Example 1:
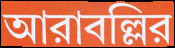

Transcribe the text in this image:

আরাবল্লির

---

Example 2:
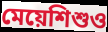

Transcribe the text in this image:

মেয়েশিশুও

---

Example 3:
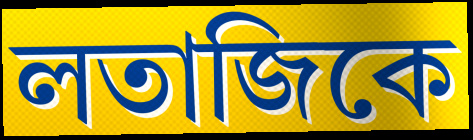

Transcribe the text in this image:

লতাজিকে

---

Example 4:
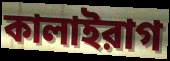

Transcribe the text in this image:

কালাইরাগ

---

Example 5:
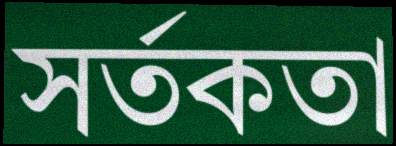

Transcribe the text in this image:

সর্তকতা